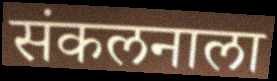
संकलनाला